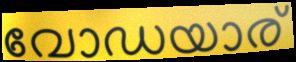
വോഡയാര്